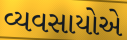
વ્યવસાયોએ